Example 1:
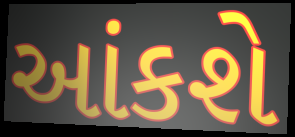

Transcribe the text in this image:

આંકશે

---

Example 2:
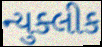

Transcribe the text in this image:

ન્યુક્લીક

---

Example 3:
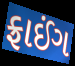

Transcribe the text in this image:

ફ્રાઈંગ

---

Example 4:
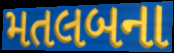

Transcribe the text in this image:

મતલબના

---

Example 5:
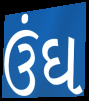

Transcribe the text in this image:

ઉંઘ